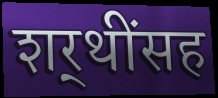
शर्थींसह